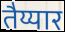
तैय्यार